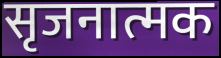
सृजनात्मक